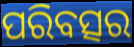
ପରିବତ୍ସର